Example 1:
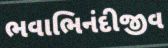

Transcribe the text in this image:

ભવાભિનંદીજીવ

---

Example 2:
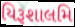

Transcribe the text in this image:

યિરૂશાલમિ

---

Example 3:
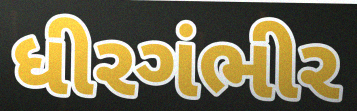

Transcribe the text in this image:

ધીરગંભીર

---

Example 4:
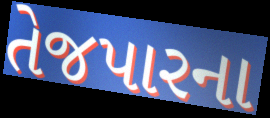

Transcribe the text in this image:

તેજપારના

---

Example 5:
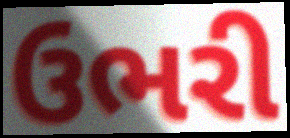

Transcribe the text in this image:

ઉભરી